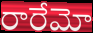
రారేమో